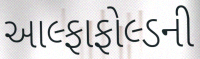
આલ્ફાફોલ્ડની